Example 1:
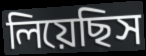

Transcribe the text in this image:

লিয়েছিস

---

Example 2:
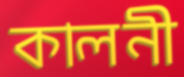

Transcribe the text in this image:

কালনী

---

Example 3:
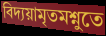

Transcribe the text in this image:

বিদ্যয়ামৃতমশ্নুতে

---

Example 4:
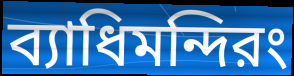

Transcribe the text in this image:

ব্যাধিমন্দিরং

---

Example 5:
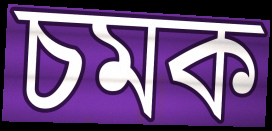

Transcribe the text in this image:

চমক